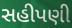
સહીપણી